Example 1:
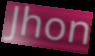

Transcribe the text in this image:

Jhon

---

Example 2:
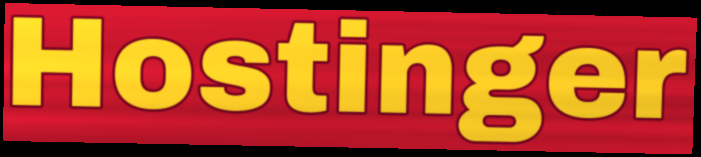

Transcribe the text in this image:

Hostinger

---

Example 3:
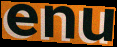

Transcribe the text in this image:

enu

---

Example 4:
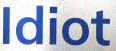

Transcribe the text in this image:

Idiot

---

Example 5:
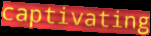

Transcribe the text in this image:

captivating